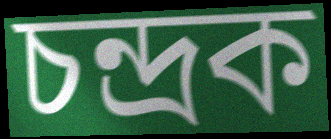
চন্দ্ৰক